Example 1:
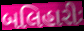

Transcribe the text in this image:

બલિહારીઃ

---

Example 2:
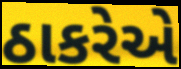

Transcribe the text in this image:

ઠાકરેએ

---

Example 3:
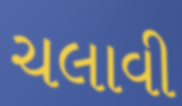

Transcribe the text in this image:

ચલાવી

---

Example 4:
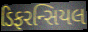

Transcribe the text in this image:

ડિફરન્સિયલ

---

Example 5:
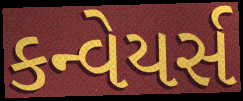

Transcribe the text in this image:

કન્વેયર્સ